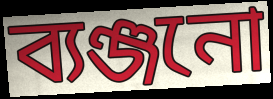
ব্যঞ্জনো